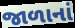
જાળાનાં